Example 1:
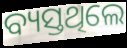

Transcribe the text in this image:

ବ୍ୟସ୍ତଥିଲେ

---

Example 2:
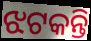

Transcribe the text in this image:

ଝଟକନ୍ତି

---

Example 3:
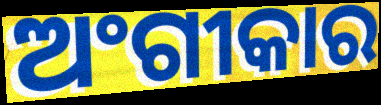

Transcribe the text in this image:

ଅଂଗୀକାର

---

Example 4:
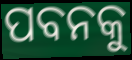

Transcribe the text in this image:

ପବନକୁ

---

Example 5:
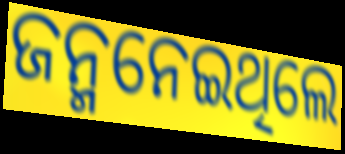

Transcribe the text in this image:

ଜନ୍ମନେଇଥିଲେ